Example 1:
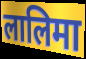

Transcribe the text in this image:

लालिमा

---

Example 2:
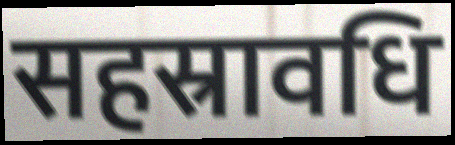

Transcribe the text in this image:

सहस्रावधि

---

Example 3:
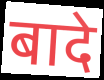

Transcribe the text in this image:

बादे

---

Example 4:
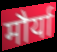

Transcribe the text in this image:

मौर्या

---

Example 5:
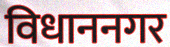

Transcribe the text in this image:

विधाननगर